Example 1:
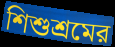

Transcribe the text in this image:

শিশুশ্রমের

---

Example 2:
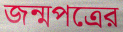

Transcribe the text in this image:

জন্মপত্রের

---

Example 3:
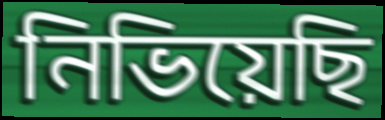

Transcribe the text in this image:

নিভিয়েছি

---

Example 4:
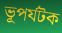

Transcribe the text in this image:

ভূপর্যটক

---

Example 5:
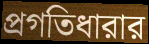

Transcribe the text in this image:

প্রগতিধারার